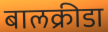
बालक्रीडा